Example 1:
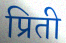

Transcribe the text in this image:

प्रिती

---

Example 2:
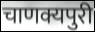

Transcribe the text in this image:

चाणक्यपुरी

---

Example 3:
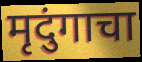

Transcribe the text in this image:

मृदुंगाचा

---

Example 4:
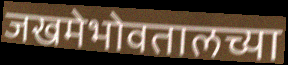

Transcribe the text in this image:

जखमेभोवतालच्या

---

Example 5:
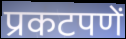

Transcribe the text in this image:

प्रकटपणें